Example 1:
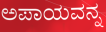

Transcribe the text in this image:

ಅಪಾಯವನ್ನ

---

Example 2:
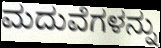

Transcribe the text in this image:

ಮದುವೆಗಳನ್ನು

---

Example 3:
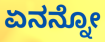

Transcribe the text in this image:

ಏನನ್ನೋ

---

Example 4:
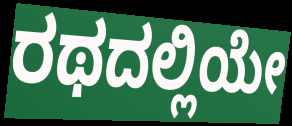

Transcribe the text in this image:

ರಥದಲ್ಲಿಯೇ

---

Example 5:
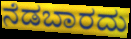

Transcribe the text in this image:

ನೆಡಬಾರದು